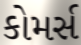
કોમર્સ